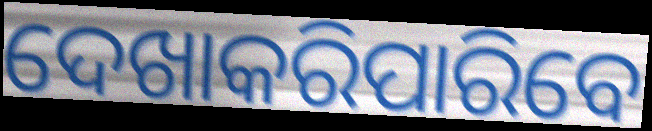
ଦେଖାକରିପାରିବେ